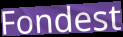
Fondest